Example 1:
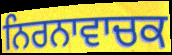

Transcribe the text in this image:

ਨਿਰਨਾਵਾਚਕ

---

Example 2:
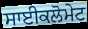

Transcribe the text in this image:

ਸਾਈਕਲੋਮੇਟ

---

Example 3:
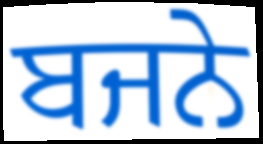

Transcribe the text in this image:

ਬਜਨੇ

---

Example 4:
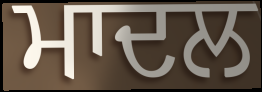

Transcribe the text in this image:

ਮਾਦਲ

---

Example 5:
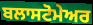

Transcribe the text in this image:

ਬਲਾਸਟੋਮੇਅਰ